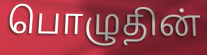
பொழுதின்